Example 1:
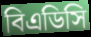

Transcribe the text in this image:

বিএডিসি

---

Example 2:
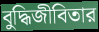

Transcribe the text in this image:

বুদ্ধিজীবিতার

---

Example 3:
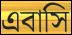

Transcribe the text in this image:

এবাসি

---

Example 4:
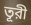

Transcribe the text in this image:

তূরী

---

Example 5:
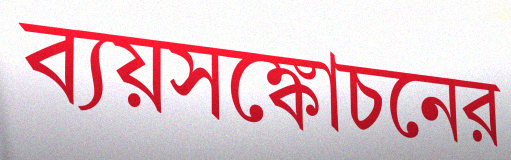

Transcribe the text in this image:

ব্যয়সঙ্কোচনের